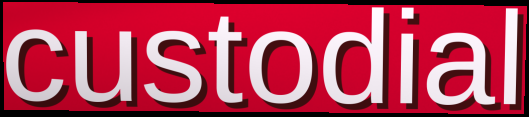
custodial